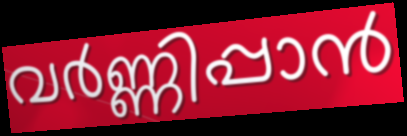
വർണ്ണിപ്പാൻ